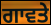
ਗਾਵਤੇ